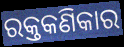
ରକ୍ତକଣିକାର